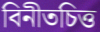
বিনীতচিত্ত